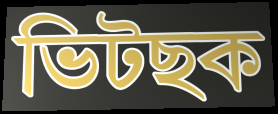
ভিটছক